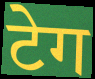
टेग